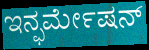
ಇನ್ಫರ್ಮೇಷನ್